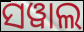
ସୱାଲ